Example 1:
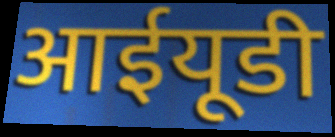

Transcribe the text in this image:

आईयूडी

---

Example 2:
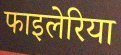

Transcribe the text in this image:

फाइलेरिया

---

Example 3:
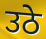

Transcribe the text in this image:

उठे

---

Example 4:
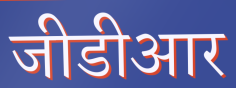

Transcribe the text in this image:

जीडीआर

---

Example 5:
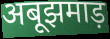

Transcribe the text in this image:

अबूझमाड़